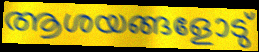
ആശയങ്ങളോടു്